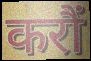
करौं